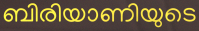
ബിരിയാണിയുടെ